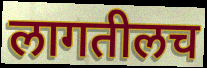
लागतीलच